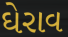
ઘેરાવ